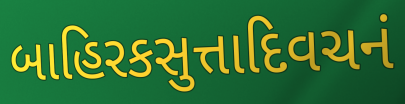
બાહિરકસુત્તાદિવચનં